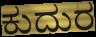
ಕುದುರ